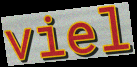
viel